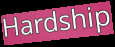
Hardship